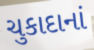
ચુકાદાનાં